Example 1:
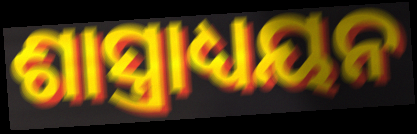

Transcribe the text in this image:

ଶାସ୍ତ୍ରାଧ୍ୟୟନ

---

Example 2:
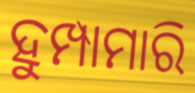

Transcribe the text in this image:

ହୁମ୍ପାମାରି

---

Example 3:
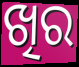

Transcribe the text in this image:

ଖିର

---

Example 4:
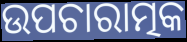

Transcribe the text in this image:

ଉପଚାରାତ୍ମକ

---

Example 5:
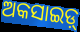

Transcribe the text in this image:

ଅକସାଇଡ଼୍